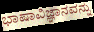
ಭಾಷಾವಿಜ್ಞಾನವನ್ನು